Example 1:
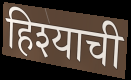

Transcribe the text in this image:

हिश्याची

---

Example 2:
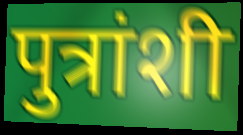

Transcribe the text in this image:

पुत्रांशी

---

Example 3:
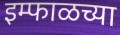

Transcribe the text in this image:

इम्फाळच्या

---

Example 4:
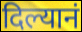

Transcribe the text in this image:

दिल्यानं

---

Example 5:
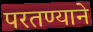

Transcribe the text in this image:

परतण्याने